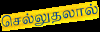
செல்லுதலால்